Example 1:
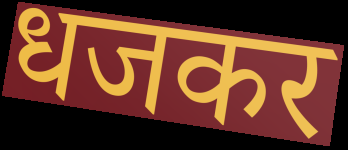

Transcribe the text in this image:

धजकर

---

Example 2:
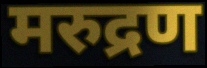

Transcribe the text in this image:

मरुद्रण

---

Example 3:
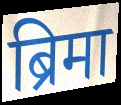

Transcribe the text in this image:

ब्रिमा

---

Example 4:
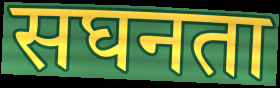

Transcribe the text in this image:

सघनता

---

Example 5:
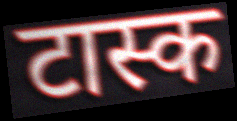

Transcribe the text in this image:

टास्क